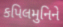
કપિલમુનિને